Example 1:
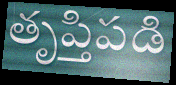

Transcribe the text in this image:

తృప్తిపడి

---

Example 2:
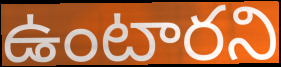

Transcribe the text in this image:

ఉంటారని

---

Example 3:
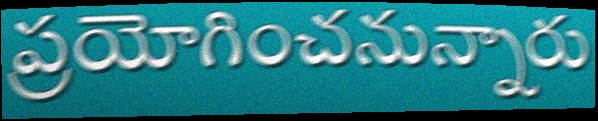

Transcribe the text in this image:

ప్రయోగించనున్నారు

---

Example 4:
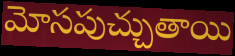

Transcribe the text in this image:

మోసపుచ్చుతాయి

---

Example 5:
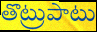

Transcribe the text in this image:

తొట్రుపాటు